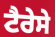
ਟੈਰੇਸੇ